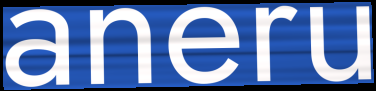
aneru